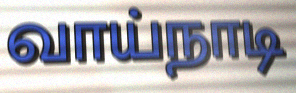
வாய்நாடி